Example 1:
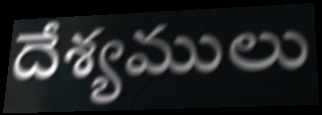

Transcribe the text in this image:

దేశ్యములు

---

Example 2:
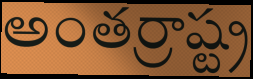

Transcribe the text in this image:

అంతర్రాష్ట్ర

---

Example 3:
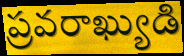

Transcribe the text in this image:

ప్రవరాఖ్యుడి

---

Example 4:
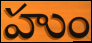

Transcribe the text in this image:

హుం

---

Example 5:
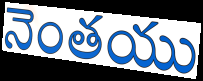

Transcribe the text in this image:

నెంతయు